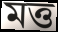
মত্ত